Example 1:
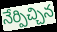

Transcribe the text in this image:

నేర్పిచ్చిన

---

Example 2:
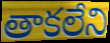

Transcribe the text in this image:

తాకలేని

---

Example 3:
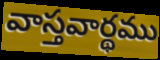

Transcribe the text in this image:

వాస్తవార్థము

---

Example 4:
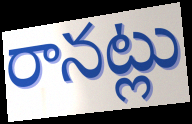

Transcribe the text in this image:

రానట్లు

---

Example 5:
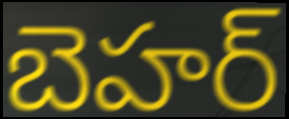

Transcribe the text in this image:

బెహర్